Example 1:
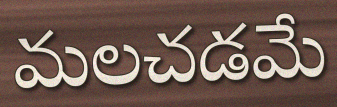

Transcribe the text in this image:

మలచడమే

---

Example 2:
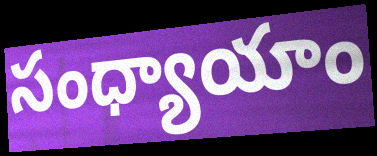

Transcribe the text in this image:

సంధ్యాయాం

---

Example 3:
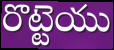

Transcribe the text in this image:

రొట్టెయు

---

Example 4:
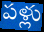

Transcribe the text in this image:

పళ్లు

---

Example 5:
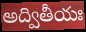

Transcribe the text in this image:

అద్వితీయః